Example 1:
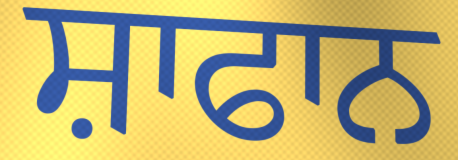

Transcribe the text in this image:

ਸ਼ਾਫਾਨ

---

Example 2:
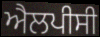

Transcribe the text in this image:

ਐਲਪੀਸੀ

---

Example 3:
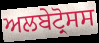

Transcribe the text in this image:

ਅਲਬੇਟ੍ਰੋਸਸ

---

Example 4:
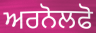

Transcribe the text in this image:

ਅਰਨੋਲਫੋ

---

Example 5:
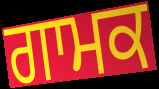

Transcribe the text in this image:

ਗਾਮਕ